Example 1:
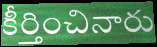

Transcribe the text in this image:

కీర్తించినారు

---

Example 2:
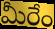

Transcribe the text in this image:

మీరేం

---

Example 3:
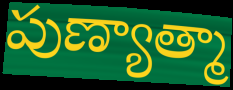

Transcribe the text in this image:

పుణ్యాత్మా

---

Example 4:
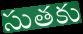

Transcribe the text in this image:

సుతకు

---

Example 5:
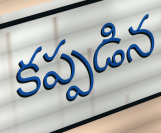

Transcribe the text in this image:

కప్పడిన